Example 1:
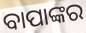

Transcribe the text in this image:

ବାପାଙ୍କର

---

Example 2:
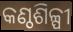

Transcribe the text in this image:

କଣ୍ଠଶିଳ୍ପୀ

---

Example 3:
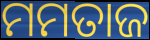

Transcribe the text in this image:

ମମତାଜ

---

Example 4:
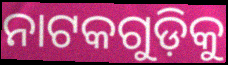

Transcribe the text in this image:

ନାଟକଗୁଡ଼ିକୁ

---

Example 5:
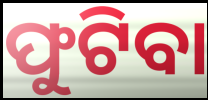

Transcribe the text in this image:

ଫୁଟିବା